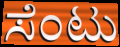
ಸೆಂಟು